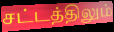
சட்டத்திலும்